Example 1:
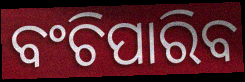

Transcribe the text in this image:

ବଂଚିପାରିବ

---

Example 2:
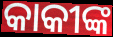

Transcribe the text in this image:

କାକୀଙ୍କ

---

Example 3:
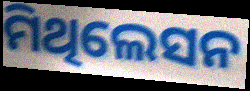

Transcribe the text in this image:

ମିଥିଲେସନ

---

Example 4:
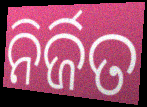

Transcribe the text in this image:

ନିର୍ଜିତ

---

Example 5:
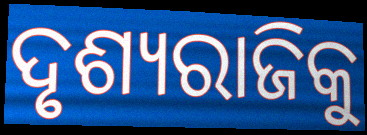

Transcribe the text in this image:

ଦୃଶ୍ୟରାଜିକୁ